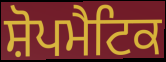
ਸ਼ੋਪਮੈਟਿਕ